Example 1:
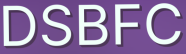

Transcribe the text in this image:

DSBFC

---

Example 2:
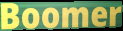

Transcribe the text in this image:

Boomer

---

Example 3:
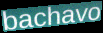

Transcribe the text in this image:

bachavo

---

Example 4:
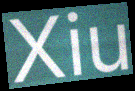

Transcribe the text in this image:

Xiu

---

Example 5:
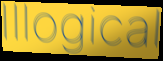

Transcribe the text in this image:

Illogical